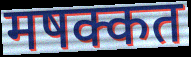
मषक्कत